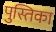
पुस्तिका